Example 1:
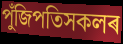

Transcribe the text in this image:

পুঁজিপতিসকলৰ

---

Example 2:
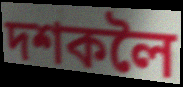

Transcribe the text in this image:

দশকলৈ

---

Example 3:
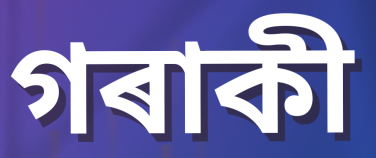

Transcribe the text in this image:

গৰাকী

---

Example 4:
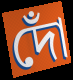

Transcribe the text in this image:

দোঁ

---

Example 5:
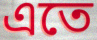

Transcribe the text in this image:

এতে